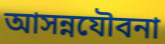
আসন্নযৌবনা